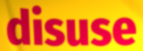
disuse